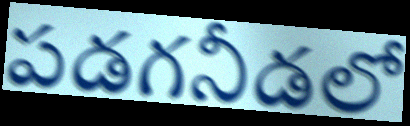
పడగనీడలో